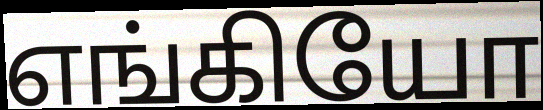
எங்கியோ